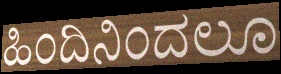
ಹಿಂದಿನಿಂದಲೂ